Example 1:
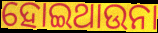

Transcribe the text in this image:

ହୋଇଥାଉନା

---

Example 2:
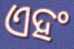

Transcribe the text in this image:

ଏହଂ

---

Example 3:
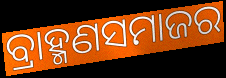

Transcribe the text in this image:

ବ୍ରାହ୍ମଣସମାଜର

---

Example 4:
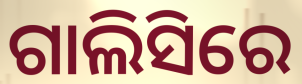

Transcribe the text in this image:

ଗାଲିସିରେ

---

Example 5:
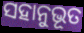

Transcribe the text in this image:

ସହାନୁଭୂତ